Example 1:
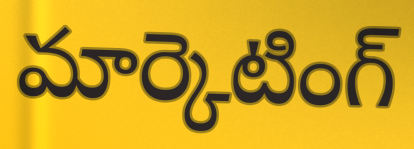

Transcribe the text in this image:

మార్కెటింగ్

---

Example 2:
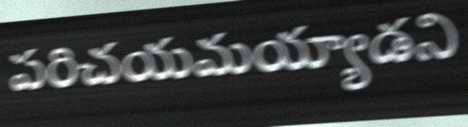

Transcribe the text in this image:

పరిచయమయ్యాడని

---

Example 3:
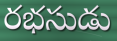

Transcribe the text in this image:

రభసుడు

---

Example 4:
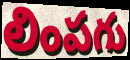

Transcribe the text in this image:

లింపగు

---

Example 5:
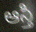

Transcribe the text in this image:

ఆస్తి